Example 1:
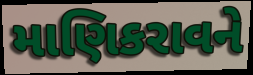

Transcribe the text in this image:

માણિકરાવને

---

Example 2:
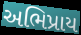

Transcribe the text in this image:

અભિપ્રાય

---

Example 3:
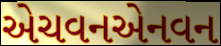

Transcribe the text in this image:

એચવનએનવન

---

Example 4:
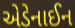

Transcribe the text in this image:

એડેનાઈન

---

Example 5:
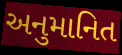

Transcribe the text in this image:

અનુમાનિત